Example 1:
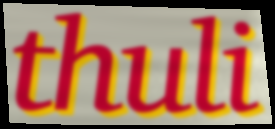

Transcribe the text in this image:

thuli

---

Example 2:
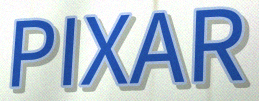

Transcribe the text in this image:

PIXAR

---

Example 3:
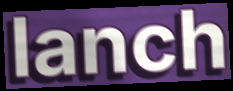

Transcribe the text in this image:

lanch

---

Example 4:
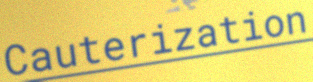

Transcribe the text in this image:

Cauterization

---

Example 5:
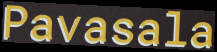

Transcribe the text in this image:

Pavasala